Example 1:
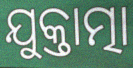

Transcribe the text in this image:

ଯୁକ୍ତାତ୍ମା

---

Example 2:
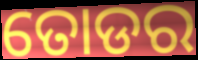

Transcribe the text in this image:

ତୋଡର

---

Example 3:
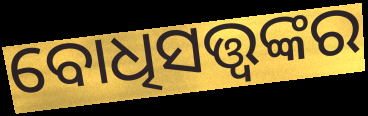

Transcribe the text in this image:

ବୋଧିସତ୍ତ୍ଵଙ୍କର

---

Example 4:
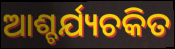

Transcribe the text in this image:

ଆଶ୍ଚର୍ଯ୍ୟଚକିତ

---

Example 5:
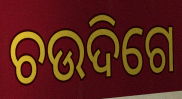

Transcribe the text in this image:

ଚଉଦିଗେ